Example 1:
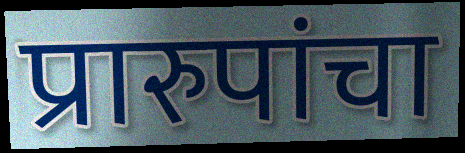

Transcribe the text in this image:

प्रारुपांचा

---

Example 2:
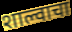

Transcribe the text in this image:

शाल्वाचा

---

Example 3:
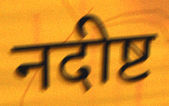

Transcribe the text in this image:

नदीष्ट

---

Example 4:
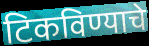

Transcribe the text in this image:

टिकविण्याचे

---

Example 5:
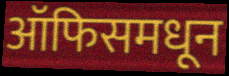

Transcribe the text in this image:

ऑफिसमधून